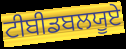
ਟੀਬੀਡਬਲਯੂਏ